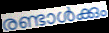
രണ്ടാൾക്കും